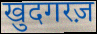
खुदगरज़